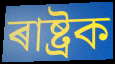
ৰাষ্ট্ৰক